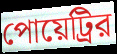
পোয়েট্রির